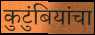
कुटुंबियांचा